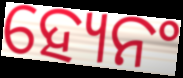
ହ୍ୟେନଂ